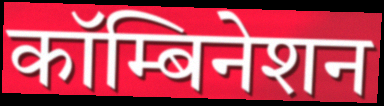
कॉम्बिनेशन